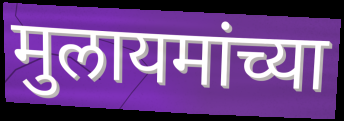
मुलायमांच्या